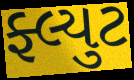
ફ્લ્યુટ